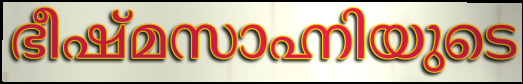
ഭീഷ്മസാഹ്നിയുടെ